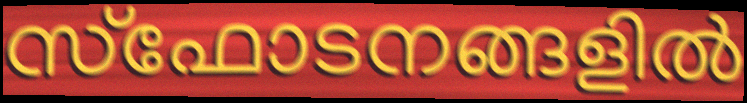
സ്ഫോടനങ്ങളിൽ